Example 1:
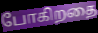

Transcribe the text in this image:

போகிறதை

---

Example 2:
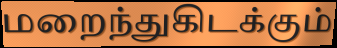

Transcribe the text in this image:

மறைந்துகிடக்கும்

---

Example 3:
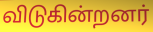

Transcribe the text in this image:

விடுகின்றனர்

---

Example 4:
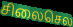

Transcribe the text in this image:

சிலைசெல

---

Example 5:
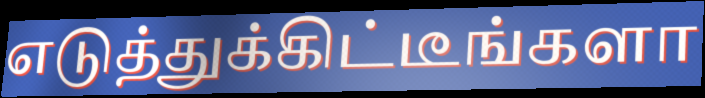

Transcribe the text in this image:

எடுத்துக்கிட்டீங்களா